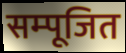
सम्पूजित